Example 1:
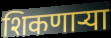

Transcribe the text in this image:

शिकणाऱ्या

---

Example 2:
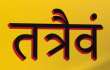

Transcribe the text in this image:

तत्रैवं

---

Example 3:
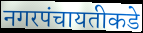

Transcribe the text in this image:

नगरपंचायतीकडे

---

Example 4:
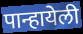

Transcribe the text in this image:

पान्हायेली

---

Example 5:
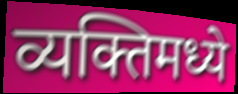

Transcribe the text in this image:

व्यक्तिमध्ये